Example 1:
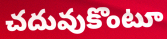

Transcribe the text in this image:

చదువుకొంటూ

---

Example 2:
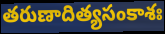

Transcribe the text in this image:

తరుణాదిత్యసంకాశః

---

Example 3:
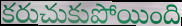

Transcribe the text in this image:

కరుచుకుపోయింది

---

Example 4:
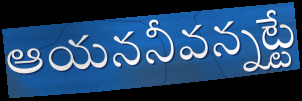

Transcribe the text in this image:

ఆయననీవన్నట్టే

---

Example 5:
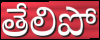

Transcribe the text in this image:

తేలిపో